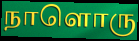
நாளொரு